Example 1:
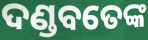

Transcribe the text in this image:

ଦଣ୍ଡବତେଙ୍କ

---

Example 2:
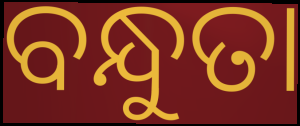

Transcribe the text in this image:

ବନ୍ଧୁତା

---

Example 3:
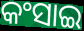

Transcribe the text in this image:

କଂସାଇ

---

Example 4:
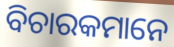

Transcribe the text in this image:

ବିଚାରକମାନେ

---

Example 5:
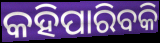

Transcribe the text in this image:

କହିପାରିବକି